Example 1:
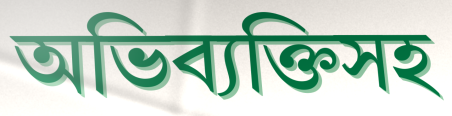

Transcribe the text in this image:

অভিব্যক্তিসহ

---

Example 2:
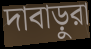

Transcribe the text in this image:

দাবাড়ুরা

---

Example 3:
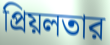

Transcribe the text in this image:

প্রিয়লতার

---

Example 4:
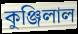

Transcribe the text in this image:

কুঞ্জিলাল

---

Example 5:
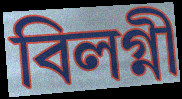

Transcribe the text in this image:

বিলগ্নী